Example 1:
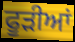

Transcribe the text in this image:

ਫੂੜੀਆਂ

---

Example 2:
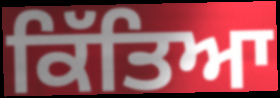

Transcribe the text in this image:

ਕਿੱਤਿਆ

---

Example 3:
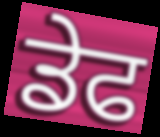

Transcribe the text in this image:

ਡੇਫ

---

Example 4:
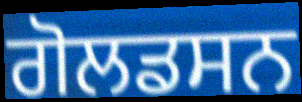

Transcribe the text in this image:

ਗੋਲਡਸਨ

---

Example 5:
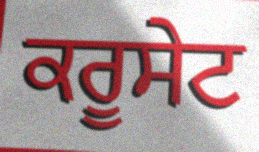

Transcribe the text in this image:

ਕਰੂਸੇਟ